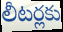
లీటర్లకు